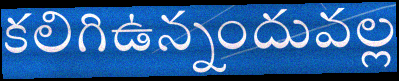
కలిగిఉన్నందువల్ల